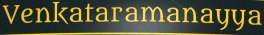
Venkataramanayya